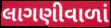
લાગણીવાળાં